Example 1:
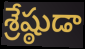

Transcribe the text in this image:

శ్రేష్ఠుడా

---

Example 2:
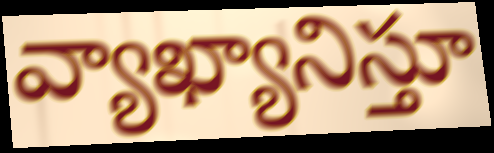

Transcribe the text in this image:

వ్యాఖ్యానిస్తూ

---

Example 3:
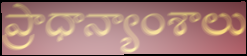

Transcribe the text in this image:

ప్రాధాన్యాంశాలు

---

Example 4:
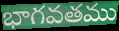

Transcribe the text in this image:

భాగవతము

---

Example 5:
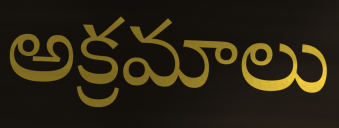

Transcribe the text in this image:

అక్రమాలు